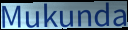
Mukunda